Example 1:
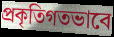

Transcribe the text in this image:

প্রকৃতিগতভাবে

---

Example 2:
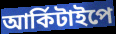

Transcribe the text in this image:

আর্কিটাইপে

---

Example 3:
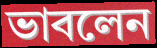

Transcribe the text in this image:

ভাবলেন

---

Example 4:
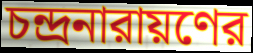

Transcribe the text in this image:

চন্দ্রনারায়ণের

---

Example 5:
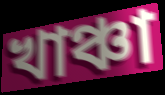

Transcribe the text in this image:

খাঞ্চা